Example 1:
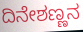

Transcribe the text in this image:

ದಿನೇಶಣ್ಣನ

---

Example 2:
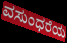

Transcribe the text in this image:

ವಸುಂಧರೆಯ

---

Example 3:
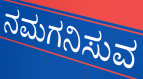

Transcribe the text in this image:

ನಮಗನಿಸುವ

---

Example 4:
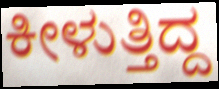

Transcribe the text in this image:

ಕೀಳುತ್ತಿದ್ದ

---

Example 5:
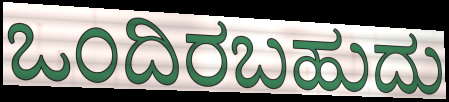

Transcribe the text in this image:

ಒಂದಿರಬಹುದು